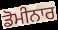
ਡੋਮੀਨਾਰ